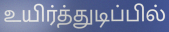
உயிர்த்துடிப்பில்